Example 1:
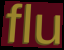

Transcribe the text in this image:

flu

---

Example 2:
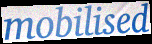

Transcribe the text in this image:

mobilised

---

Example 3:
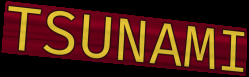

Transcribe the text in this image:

TSUNAMI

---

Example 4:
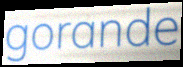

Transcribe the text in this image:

gorande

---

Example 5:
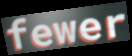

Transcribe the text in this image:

fewer